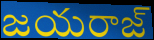
జయరాజ్